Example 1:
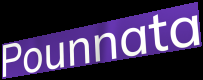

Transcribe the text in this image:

Pounnata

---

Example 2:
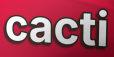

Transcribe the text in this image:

cacti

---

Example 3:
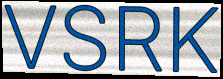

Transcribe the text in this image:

VSRK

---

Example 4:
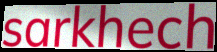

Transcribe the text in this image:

sarkhech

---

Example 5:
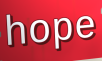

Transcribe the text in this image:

hope